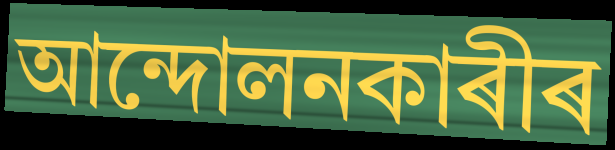
আন্দোলনকাৰীৰ